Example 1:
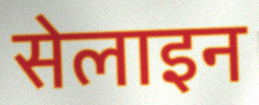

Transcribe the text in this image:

सेलाइन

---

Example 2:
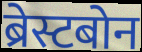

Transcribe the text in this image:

ब्रेस्टबोन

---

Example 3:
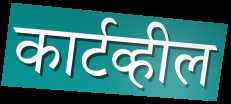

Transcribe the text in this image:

कार्टव्हील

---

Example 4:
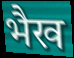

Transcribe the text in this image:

भैख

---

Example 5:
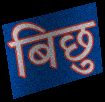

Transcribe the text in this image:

बिछु